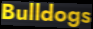
Bulldogs